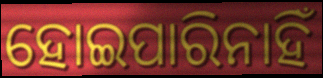
ହୋଇପାରିନାହିଁ